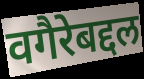
वगैरेबद्दल